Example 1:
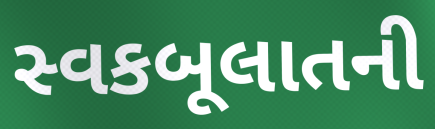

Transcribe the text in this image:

સ્વકબૂલાતની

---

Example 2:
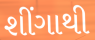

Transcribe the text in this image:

શીંગાથી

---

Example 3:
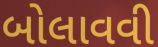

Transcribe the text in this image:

બોલાવવી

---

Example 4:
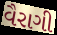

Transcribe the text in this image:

વૈરાગી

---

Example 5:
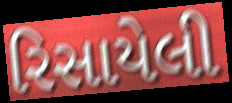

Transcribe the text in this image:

રિસાયેલી